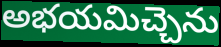
అభయమిచ్చెను